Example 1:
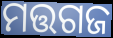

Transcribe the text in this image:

ମତ୍ତଗଜ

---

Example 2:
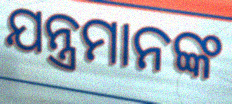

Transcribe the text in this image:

ଯନ୍ତ୍ରମାନଙ୍କ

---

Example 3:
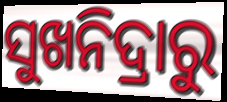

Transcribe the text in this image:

ସୁଖନିଦ୍ରାରୁ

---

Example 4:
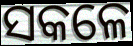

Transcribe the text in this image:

ସକଳେ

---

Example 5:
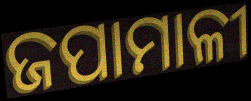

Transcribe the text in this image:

ଜପାମାଳୀ